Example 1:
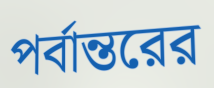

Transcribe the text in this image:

পর্বান্তরের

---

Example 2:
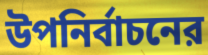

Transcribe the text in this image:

উপনির্বাচনের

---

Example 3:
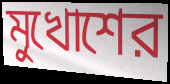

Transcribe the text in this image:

মুখোশের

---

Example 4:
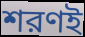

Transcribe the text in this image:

শরণই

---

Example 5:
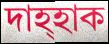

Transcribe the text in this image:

দাহ্হাক